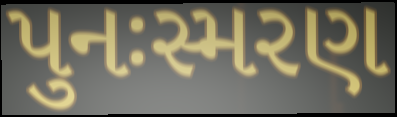
પુનઃસ્મરણ